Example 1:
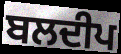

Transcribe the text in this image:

ਬਲਦੀਪ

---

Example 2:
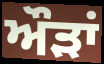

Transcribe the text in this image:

ਔੜਾਂ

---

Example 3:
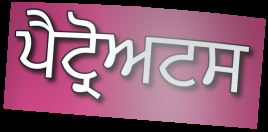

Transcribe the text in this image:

ਪੈਟ੍ਰੋਅਟਸ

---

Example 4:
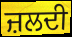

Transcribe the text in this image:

ਜ਼ਲਦੀ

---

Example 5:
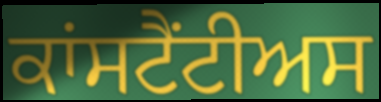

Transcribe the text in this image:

ਕਾਂਸਟੈਂਟੀਅਸ